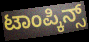
ಟಾಂಪ್ಕಿನ್ಸ್